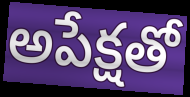
అపేక్షతో